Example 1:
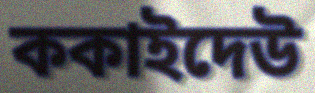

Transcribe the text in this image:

ককাইদেউ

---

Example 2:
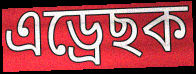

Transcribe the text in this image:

এড্ৰেছক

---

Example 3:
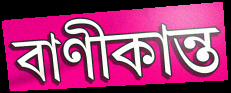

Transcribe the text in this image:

বাণীকান্ত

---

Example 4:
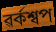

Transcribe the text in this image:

ৱৰ্কশ্বপ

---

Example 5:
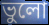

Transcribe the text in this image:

ভুলো